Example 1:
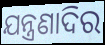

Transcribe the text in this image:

ଯନ୍ତ୍ରଣାଦିର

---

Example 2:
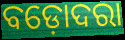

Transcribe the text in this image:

ବଡ଼ୋଦରା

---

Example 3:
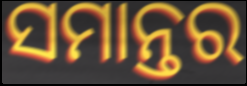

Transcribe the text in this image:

ସମାନ୍ତର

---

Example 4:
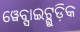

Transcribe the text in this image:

ୱେବ୍ସାଇଟ୍ଗୁଡ଼ିକ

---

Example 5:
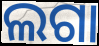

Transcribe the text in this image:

ଲଗା